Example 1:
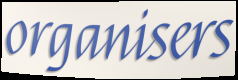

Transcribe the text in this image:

organisers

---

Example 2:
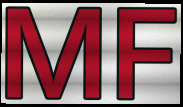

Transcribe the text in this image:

MF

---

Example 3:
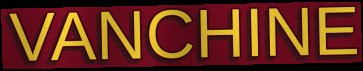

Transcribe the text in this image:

VANCHINE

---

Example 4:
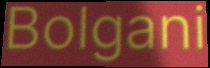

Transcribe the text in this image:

Bolgani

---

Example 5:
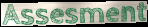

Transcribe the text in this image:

Assesment